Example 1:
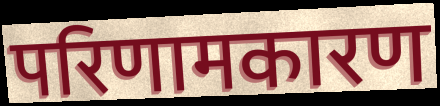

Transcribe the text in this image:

परिणामकारण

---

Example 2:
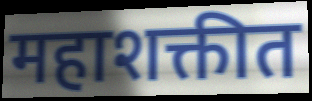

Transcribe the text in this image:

महाशक्तीत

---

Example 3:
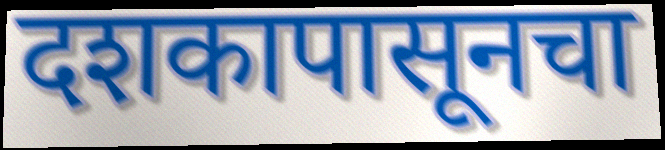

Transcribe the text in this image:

दशकापासूनचा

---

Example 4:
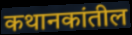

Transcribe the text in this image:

कथानकांतील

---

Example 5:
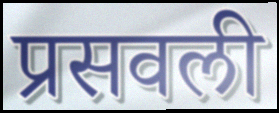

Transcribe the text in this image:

प्रसवली